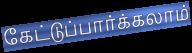
கேட்டுப்பார்க்கலாம்